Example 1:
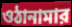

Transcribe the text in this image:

ওঠানামার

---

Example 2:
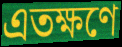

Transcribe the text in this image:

এতক্ষণে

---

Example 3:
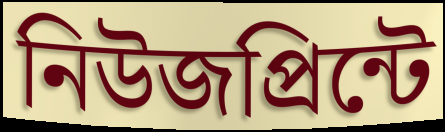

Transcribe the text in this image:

নিউজপ্রিন্টে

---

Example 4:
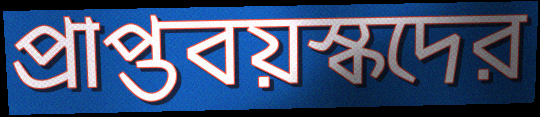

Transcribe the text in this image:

প্রাপ্তবয়স্কদের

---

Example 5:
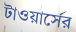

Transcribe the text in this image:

টাওয়ার্সের